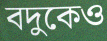
বদুকেও